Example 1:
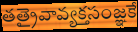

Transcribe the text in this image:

తత్రైవావ్యక్తసంజ్ఞకే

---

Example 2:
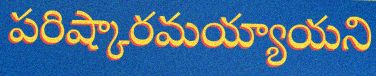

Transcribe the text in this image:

పరిష్కారమయ్యాయని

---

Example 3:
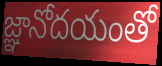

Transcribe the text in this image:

జ్ఞానోదయంతో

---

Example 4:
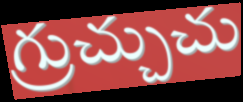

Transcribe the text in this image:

గ్రుచ్చుచు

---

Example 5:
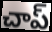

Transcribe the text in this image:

చాప్